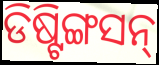
ଡିଷ୍ଟିଙ୍ଗସନ୍